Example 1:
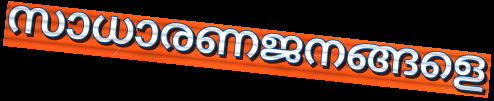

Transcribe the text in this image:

സാധാരണജനങ്ങളെ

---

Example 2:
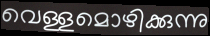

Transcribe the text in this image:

വെള്ളമൊഴിക്കുന്നു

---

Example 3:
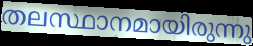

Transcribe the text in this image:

തലസ്ഥാനമായിരുന്നു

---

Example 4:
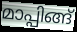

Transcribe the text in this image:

മാപ്പിങ്ങ്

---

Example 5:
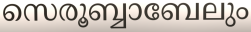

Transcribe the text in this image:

സെരൂബ്ബാബേലും